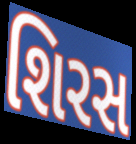
શિરસ